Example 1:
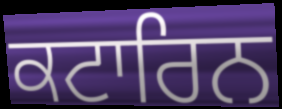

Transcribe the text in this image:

ਕਟਾਰਿਨ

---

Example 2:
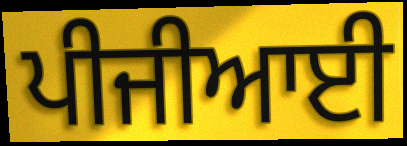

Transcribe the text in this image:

ਪੀਜੀਆਈ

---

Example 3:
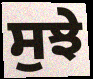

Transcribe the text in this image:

ਸੁਝੇ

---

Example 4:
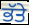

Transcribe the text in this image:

ਭੱਤੇ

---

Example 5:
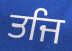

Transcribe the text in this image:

ਤਜਿ